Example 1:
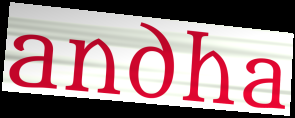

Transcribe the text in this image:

andha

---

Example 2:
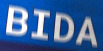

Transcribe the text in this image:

BIDA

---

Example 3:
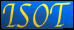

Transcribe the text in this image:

ISOT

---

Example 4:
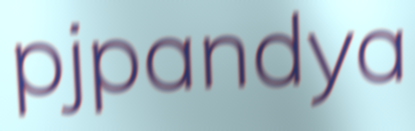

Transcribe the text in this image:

pjpandya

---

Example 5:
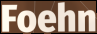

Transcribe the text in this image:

Foehn